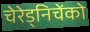
चेरेड्निचेंको